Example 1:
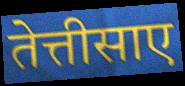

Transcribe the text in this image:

तेत्तीसाए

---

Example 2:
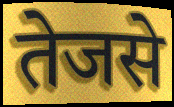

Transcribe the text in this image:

तेजसे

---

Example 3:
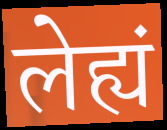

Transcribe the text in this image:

लेह्यं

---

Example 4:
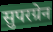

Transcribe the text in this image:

सुपरग्रेन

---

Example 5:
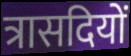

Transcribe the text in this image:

त्रासदियों